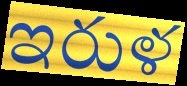
ఇరుళ